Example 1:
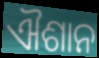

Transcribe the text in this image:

ଐଶାନ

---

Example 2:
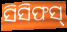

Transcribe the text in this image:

ସିସିଫସ୍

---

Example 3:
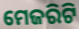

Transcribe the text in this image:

ମେଜରିଟି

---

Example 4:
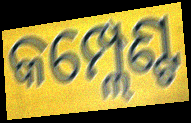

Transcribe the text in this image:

କମ୍ପ୍ଲେଣ୍ଟ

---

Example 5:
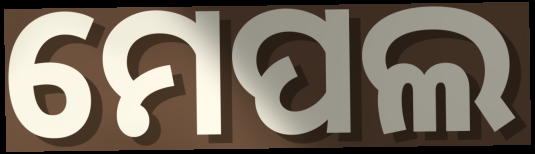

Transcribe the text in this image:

ମେପଲ